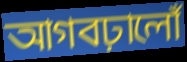
আগবঢ়ালোঁ